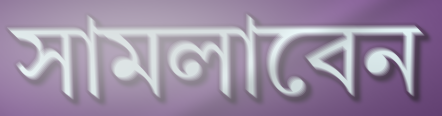
সামলাবেন